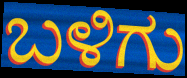
ಬಳಿಗು